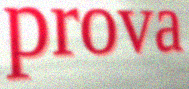
prova